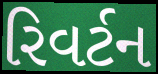
રિવર્ટન